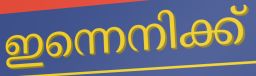
ഇന്നെനിക്ക്